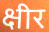
क्षीर